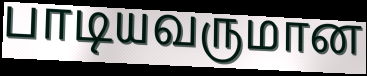
பாடியவருமான